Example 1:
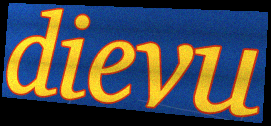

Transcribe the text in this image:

dievu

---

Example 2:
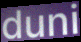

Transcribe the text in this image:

duni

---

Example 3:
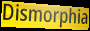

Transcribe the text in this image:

Dismorphia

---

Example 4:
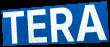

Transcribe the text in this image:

TERA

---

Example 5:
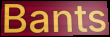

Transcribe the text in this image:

Bants